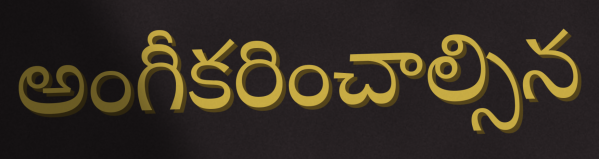
అంగీకరించాల్సిన